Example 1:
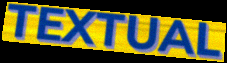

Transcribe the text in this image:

TEXTUAL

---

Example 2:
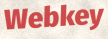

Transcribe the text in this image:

Webkey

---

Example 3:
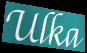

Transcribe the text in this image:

Ulka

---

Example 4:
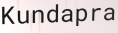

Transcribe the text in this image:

Kundapra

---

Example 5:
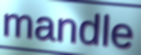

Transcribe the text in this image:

mandle